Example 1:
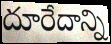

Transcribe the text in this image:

దూరేదాన్ని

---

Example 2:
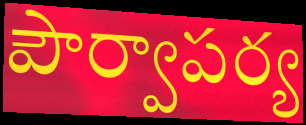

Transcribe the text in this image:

పౌర్వాపర్య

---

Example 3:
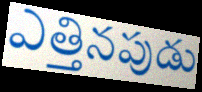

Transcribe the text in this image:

ఎత్తినపుడు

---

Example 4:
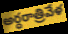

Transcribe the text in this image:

అర్ధరాత్రివేళ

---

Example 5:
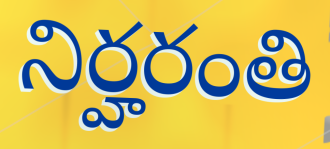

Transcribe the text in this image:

నిర్హరంతి